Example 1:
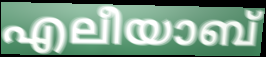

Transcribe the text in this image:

എലീയാബ്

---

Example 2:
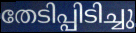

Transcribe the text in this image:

തേടിപ്പിടിച്ചു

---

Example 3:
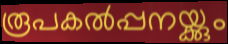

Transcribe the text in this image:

രൂപകൽപ്പനയ്ക്കും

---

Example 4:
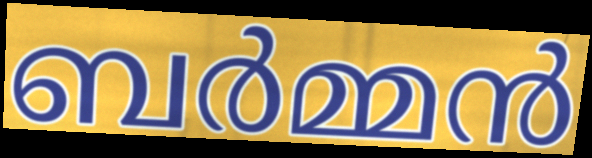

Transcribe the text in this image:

ബർമ്മൻ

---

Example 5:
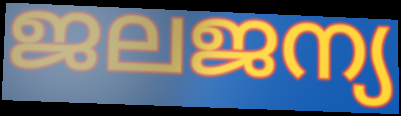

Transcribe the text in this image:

ജലജന്യ